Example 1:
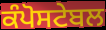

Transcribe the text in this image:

ਕੰਪੋਸਟੇਬਲ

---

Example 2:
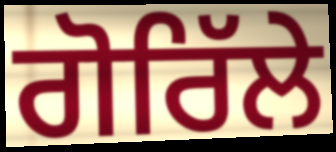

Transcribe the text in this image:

ਗੋਰਿੱਲੇ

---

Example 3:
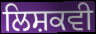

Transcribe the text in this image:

ਲਿਸ਼ਕਵੀ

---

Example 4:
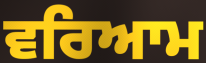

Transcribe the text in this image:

ਵਰਿਆਮ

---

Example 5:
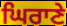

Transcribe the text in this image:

ਘਿਰਾਣੇ